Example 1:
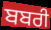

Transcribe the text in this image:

ਬਬਰੀ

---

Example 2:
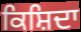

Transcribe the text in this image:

ਕਿਸ਼ਿਦਾ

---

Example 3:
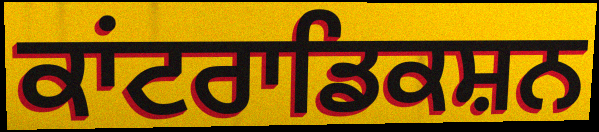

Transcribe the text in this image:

ਕਾਂਟਰਾਡਿਕਸ਼ਨ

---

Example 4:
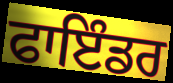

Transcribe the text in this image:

ਫਾਇੰਡਰ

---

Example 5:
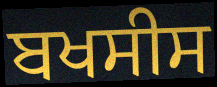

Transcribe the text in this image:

ਬਖਸੀਸ